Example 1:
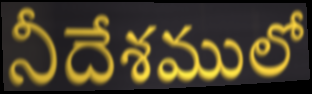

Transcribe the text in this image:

నీదేశములో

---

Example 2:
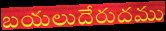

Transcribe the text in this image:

బయలుదేరుదము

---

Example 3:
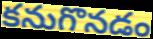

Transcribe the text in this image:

కనుగొనడం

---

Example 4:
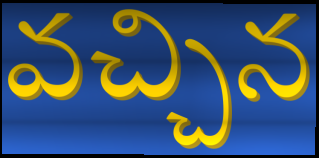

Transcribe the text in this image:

వచ్చిన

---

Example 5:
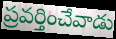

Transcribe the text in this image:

ప్రవర్తించేవాడు